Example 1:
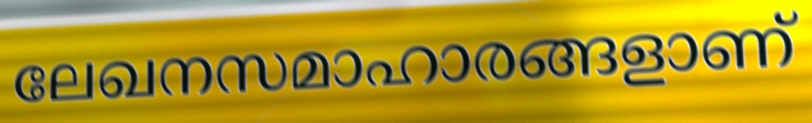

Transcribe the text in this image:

ലേഖനസമാഹാരങ്ങളാണ്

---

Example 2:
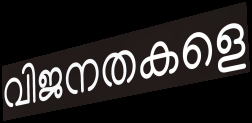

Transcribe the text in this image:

വിജനതകളെ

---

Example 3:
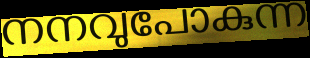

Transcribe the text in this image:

നനവുപോകുന്ന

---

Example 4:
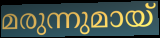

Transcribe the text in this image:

മരുന്നുമായ്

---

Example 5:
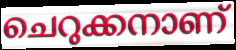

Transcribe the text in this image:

ചെറുക്കനാണ്